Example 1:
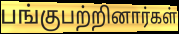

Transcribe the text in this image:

பங்குபற்றினார்கள்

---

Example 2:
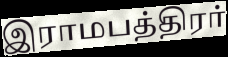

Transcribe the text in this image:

இராமபத்திரர்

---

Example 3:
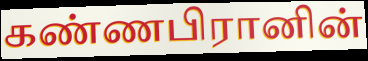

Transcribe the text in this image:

கண்ணபிரானின்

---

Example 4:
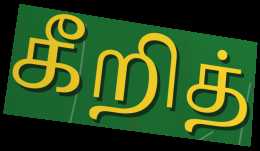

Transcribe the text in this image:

கீறித்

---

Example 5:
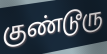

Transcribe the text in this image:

குண்டூரு